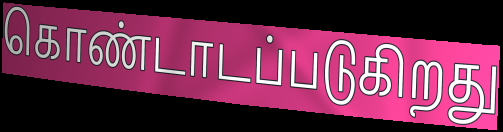
கொண்டாடப்படுகிறது